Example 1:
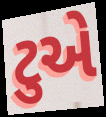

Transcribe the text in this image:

ટુએ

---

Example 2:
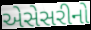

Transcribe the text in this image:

એસેસરીનો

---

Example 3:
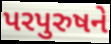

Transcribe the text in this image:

પરપુરુષને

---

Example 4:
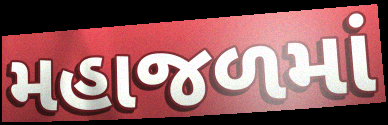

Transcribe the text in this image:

મહાજળમાં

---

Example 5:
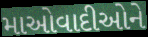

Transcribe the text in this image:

માઓવાદીઓને